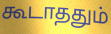
கூடாததும்